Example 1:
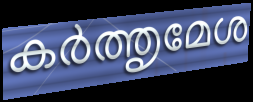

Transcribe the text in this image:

കർത്തൃമേശ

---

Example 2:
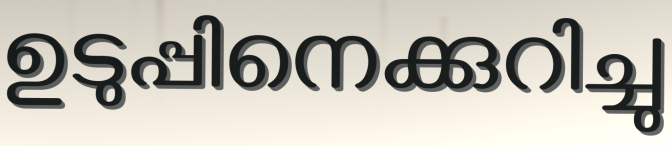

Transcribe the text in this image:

ഉടുപ്പിനെക്കുറിച്ചു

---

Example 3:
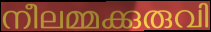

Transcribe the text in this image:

നീലമ്മക്കുരുവി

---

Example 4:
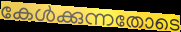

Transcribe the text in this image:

കേൾക്കുന്നതോടെ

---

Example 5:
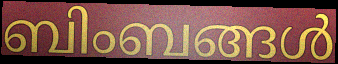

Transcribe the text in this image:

ബിംബങ്ങൾ